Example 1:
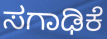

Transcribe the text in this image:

ಸಗಾಢಿಕೆ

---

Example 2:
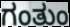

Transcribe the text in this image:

ಗಂತುಂ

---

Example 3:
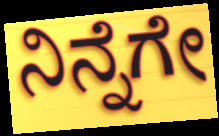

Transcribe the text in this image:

ನಿನ್ನೆಗೇ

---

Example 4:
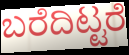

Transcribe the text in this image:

ಬರೆದಿಟ್ಟರೆ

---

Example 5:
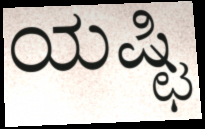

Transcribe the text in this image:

ಯಷ್ಟಿ